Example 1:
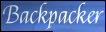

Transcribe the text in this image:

Backpacker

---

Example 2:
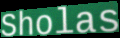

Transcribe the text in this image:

Sholas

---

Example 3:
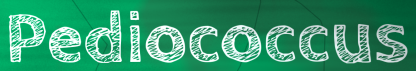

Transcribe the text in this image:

Pediococcus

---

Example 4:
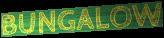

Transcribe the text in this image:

BUNGALOW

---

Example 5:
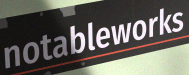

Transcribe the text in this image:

notableworks